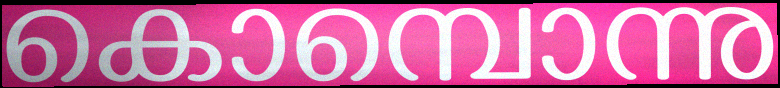
കൊമ്പൊന്നു